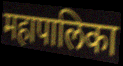
महापालिका